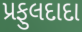
પ્રફુલદાદા